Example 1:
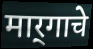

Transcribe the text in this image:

मार्गाचे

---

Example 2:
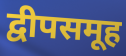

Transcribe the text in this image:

द्वीपसमूह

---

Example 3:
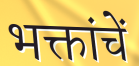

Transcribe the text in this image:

भक्तांचें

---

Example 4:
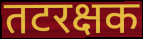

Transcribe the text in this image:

तटरक्षक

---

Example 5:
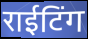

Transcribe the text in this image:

राईटिंग